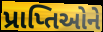
પ્રાપ્તિઓને